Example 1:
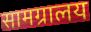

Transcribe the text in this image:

सामग्रालय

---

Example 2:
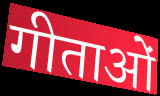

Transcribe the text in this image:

गीताओं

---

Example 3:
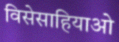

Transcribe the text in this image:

विसेसाहियाओ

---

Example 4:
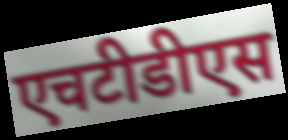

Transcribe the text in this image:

एचटीडीएस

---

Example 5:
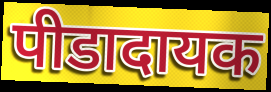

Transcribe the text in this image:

पीडादायक